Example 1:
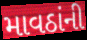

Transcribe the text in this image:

માવઠાંની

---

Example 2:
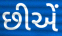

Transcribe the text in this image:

છીએં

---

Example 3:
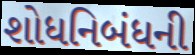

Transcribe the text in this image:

શોધનિબંધની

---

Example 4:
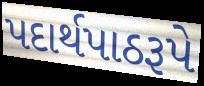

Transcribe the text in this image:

પદાર્થપાઠરૂપે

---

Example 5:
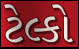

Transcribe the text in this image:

ટેલ્કો